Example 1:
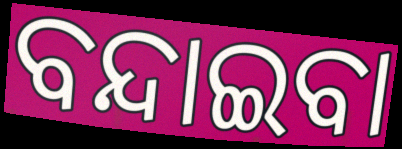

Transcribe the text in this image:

ବନ୍ଦାଇବା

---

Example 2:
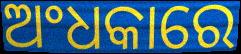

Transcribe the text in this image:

ଅଂଧକାରେ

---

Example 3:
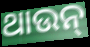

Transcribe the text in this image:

ଥାଉନ୍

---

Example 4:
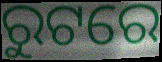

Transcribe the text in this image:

ରୁଟରେ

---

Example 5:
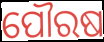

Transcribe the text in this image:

ପୌରଷ